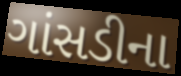
ગાંસડીના